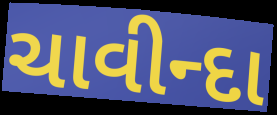
ચાવીન્દા